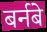
बर्नबे